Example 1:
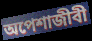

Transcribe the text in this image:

অপেশাজীবী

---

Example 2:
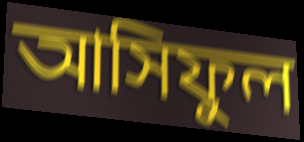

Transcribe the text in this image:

আসিফুল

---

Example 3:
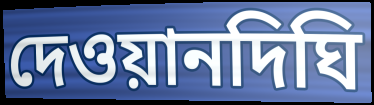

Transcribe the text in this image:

দেওয়ানদিঘি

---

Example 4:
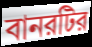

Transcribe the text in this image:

বানরটির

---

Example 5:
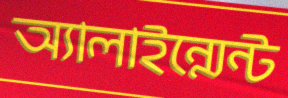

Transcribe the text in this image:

অ্যালাইন্মেন্ট